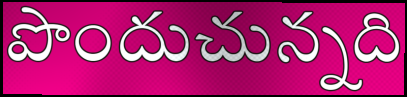
పొందుచున్నది